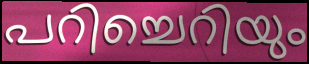
പറിച്ചെറിയും